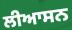
ਲੀਆਸਨ